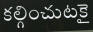
కల్గించుటకై